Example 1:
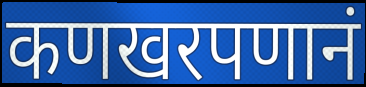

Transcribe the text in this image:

कणखरपणानं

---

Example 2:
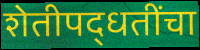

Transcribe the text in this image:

शेतीपद्धतींचा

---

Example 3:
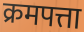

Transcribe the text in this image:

क्रमपत्ता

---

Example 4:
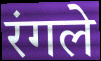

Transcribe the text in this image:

रंगले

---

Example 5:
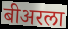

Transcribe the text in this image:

बीअरला